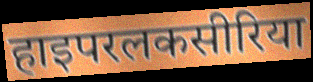
हाइपरलकसीरिया